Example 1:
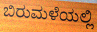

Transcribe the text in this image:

ಬಿರುಮಳೆಯಲ್ಲಿ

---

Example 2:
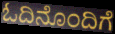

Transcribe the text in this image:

ಓದಿನೊಂದಿಗೆ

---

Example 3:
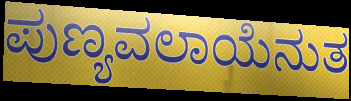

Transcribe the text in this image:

ಪುಣ್ಯವಲಾಯೆನುತ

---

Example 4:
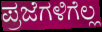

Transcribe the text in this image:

ಪ್ರಜೆಗಳಿಗೆಲ್ಲ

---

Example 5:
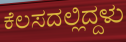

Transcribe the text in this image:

ಕೆಲಸದಲ್ಲಿದ್ದಳು